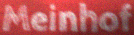
Meinhof